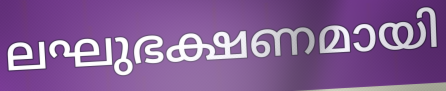
ലഘുഭക്ഷണമായി